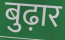
बुढ़ार